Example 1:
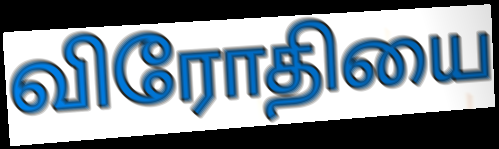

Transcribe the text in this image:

விரோதியை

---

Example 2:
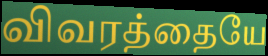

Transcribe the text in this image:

விவரத்தையே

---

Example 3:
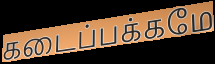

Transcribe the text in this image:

கடைப்பக்கமே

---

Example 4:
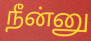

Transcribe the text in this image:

நீன்னு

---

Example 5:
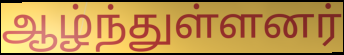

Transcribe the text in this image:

ஆழ்ந்துள்ளனர்